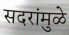
सदरांमुळे